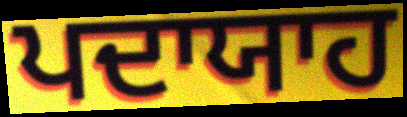
ਪਦਾਯਾਹ